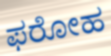
ಫರೋಹ